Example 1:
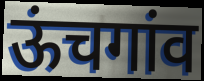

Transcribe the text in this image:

ऊंचगांव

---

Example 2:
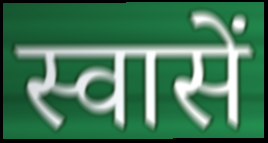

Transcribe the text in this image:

स्वासें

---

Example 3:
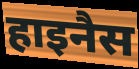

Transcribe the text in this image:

हाइनैस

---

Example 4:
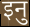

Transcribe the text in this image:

इनु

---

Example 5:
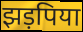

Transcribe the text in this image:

झड़पिया